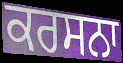
ਕਰਸਨਾ